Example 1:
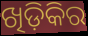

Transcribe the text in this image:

ଖିଡ଼ିକିର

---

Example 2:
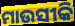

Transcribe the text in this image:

ମାଉସୀକି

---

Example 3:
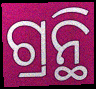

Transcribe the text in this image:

ଗ୍ରନ୍ଥି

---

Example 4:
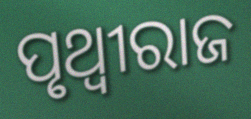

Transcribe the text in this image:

ପୃଥ୍ୱୀରାଜ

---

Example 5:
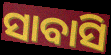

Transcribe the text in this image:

ସାବାସି